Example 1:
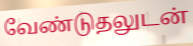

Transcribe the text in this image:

வேண்டுதலுடன்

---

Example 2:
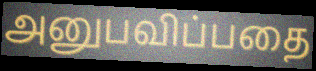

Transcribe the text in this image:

அனுபவிப்பதை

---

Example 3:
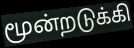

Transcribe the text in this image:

மூன்றடுக்கி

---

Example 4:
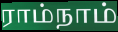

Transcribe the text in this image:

ராம்நாம்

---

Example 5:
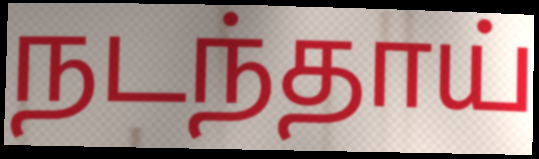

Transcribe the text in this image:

நடந்தாய்